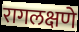
रागलक्षणे